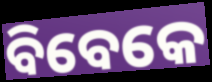
ବିବେକେ